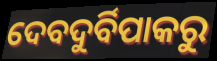
ଦେବଦୁର୍ବିପାକରୁ